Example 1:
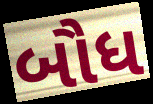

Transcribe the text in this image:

બૌધ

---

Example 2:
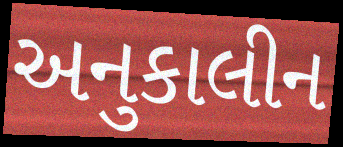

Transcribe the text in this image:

અનુકાલીન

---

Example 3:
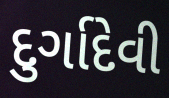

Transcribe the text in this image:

દુર્ગાદેવી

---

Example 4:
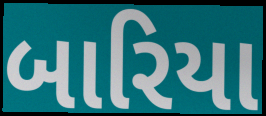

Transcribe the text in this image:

બારિયા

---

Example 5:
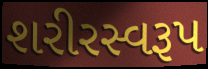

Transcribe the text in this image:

શરીરસ્વરૂપ